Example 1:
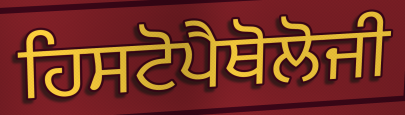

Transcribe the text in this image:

ਹਿਸਟੋਪੈਥੋਲੋਜੀ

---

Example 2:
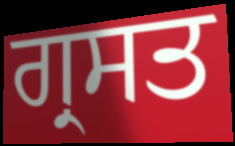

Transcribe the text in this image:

ਗ੍ਰਸਤ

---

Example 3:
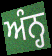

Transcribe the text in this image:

ਅੰਨ੍ਹ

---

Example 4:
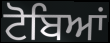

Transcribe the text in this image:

ਟੋਬਿਆਂ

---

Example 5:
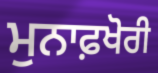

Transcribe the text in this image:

ਮੁਨਾਫ਼ਖੋਰੀ